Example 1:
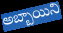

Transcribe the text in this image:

అబ్బాయిని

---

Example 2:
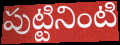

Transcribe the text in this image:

పుట్టినింటి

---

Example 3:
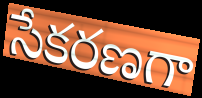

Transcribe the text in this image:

సేకరణగా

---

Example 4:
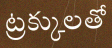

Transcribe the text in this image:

ట్రక్కులతో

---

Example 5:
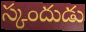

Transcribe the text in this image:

స్కందుడు